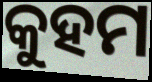
କୁହମ